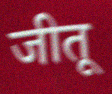
जीतू